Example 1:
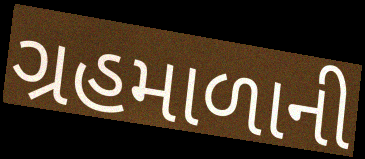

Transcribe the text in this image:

ગ્રહમાળાની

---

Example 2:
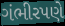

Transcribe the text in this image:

ગંભીરપણે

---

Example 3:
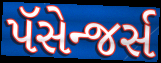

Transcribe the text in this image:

પૅસેન્જર્સ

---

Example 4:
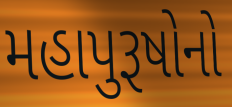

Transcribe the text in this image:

મહાપુરૂષોનો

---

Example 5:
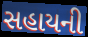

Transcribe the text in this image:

સહાયની